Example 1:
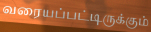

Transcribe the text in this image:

வரையப்பட்டிருக்கும்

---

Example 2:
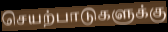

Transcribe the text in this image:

செயற்பாடுகளுக்கு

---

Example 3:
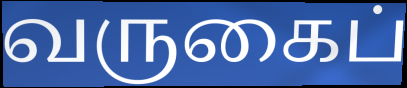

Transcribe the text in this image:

வருகைப்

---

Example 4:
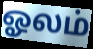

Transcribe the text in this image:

ஓலம்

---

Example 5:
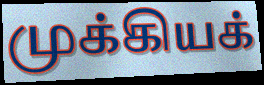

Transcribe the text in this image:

முக்கியக்